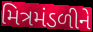
મિત્રમંડળીને